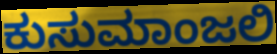
ಕುಸುಮಾಂಜಲಿ